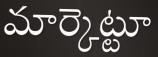
మార్కెట్టూ